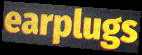
earplugs